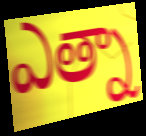
ఎత్నా